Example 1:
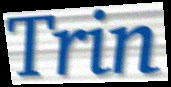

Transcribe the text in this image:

Trin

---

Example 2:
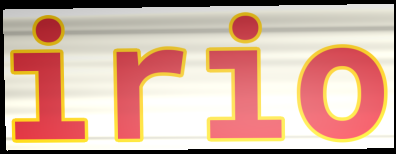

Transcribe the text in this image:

irio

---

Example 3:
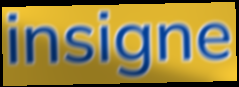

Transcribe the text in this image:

insigne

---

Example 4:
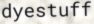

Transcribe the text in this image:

dyestuff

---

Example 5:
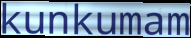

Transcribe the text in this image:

kunkumam